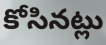
కోసినట్లు